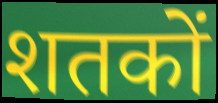
शतकों